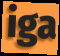
iga